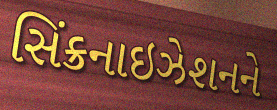
સિંક્રનાઇઝેશનને